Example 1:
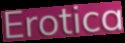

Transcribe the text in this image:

Erotica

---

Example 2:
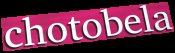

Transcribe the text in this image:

chotobela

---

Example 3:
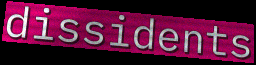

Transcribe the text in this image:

dissidents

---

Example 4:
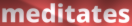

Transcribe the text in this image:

meditates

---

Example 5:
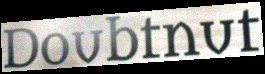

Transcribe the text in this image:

Doubtnut